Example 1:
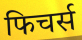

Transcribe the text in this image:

फिचर्स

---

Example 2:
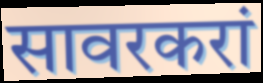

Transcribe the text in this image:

सावरकरां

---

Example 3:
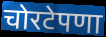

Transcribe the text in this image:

चोरटेपणा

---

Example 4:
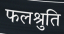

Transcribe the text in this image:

फलश्रुति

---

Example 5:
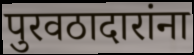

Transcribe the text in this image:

पुरवठादारांना